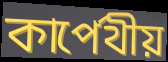
কার্পেথীয়